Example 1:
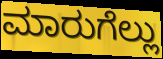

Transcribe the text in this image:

ಮಾರುಗೆಲ್ಲು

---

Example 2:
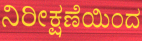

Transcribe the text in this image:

ನಿರೀಕ್ಷಣೆಯಿಂದ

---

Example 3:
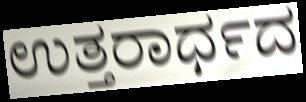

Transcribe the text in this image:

ಉತ್ತರಾರ್ಧದ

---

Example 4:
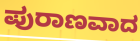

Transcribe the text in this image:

ಪುರಾಣವಾದ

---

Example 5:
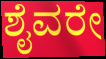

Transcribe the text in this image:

ಶೈವರೇ